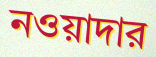
নওয়াদার